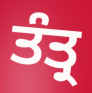
ਤੰਤ੍ਰ